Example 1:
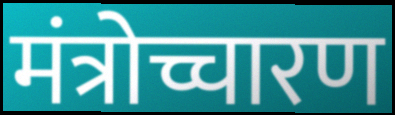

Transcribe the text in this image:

मंत्रोच्चारण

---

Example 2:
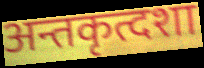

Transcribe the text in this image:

अन्तकृत्दशा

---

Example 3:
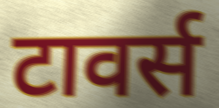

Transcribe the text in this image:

टावर्स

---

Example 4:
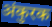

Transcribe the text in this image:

अंकुरक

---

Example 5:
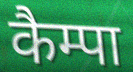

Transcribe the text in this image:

कैम्पा